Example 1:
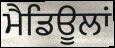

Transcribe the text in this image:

ਮੈਡਿਊਲਾਂ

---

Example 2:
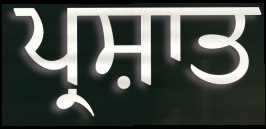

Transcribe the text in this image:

ਪ੍ਰਸ਼ਾਤ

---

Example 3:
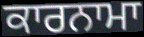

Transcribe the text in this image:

ਕਾਰਨਾਮਾ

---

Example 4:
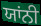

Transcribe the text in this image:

ਯਾਂਨੀ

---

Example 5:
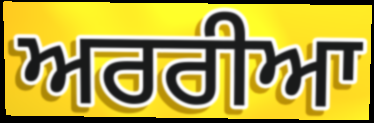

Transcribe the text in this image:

ਅਰਰੀਆ